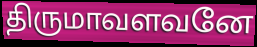
திருமாவளவனே